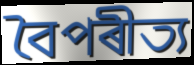
বৈপৰীত্য